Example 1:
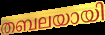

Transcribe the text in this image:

തബലയായി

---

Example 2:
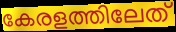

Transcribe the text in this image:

കേരളത്തിലേത്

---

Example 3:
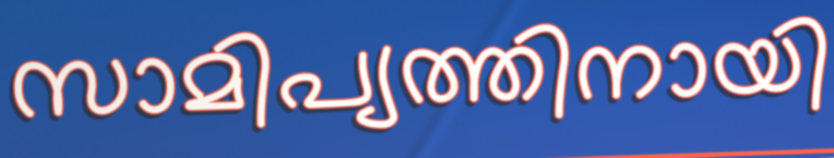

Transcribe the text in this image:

സാമിപ്യത്തിനായി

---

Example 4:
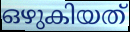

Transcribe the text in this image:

ഒഴുകിയത്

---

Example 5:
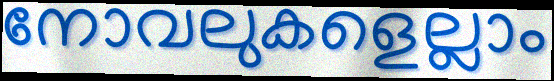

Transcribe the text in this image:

നോവലുകളെല്ലാം